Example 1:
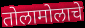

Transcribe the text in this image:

तोलामोलाचे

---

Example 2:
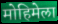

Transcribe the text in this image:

मोहिमेला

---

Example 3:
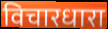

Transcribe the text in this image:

विचारधारा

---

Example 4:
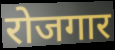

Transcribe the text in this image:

रोजगार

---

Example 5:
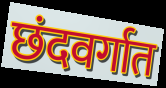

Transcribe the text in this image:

छंदवर्गात